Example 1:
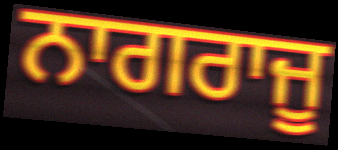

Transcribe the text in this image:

ਨਾਗਰਾਜੂ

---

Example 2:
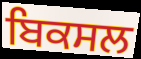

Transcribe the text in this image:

ਬਿਕਸਲ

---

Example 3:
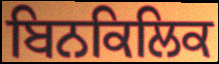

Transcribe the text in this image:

ਬਿਨਕਿਲਿਕ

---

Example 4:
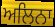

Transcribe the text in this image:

ਅਲਿਨਾ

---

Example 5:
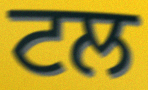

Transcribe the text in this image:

ਟਲ